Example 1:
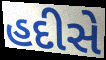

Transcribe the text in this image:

હદીસે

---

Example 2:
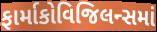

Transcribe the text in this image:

ફાર્માકોવિજિલન્સમાં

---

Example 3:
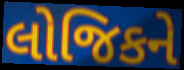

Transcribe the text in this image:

લોજિકને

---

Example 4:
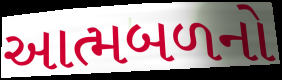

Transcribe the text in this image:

આત્મબળનો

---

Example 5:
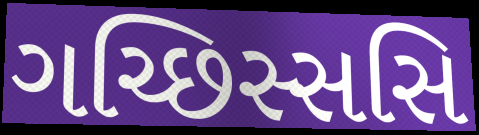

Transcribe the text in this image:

ગચ્છિસ્સસિ